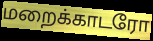
மறைக்காடரோ